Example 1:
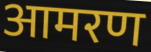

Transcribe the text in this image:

आमरण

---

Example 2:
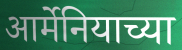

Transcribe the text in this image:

आर्मेनियाच्या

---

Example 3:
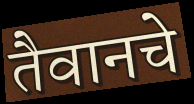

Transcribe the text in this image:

तैवानचे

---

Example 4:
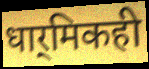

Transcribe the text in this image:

धार्मिकही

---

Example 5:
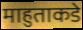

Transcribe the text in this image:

माहुताकडे